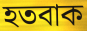
হতবাক